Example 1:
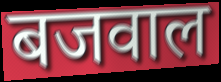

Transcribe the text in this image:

बजवाल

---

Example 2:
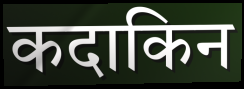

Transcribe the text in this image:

कदाकिन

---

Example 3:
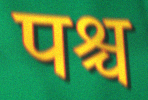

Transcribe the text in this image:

पश्च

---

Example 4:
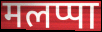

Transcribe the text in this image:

मलप्पा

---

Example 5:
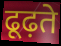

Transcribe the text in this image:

ढूढ़ते